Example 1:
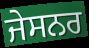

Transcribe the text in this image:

ਜੇਸਨਰ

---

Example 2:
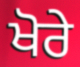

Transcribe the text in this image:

ਖੋਰੇ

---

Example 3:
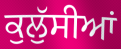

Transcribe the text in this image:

ਕੁਲੁੱਸੀਆਂ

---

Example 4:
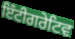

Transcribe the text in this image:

ਇੰਟੀਗਰੇਟਿਵ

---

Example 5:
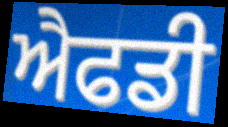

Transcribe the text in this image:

ਐਫਡੀ